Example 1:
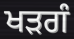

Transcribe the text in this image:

ਖੜਗੰ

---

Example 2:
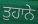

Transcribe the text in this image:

ਤੁਹਾਨੇ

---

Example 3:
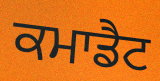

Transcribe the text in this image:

ਕਮਾਡੈਟ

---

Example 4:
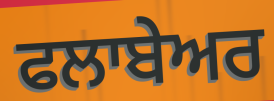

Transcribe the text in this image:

ਫਲਾਬੇਅਰ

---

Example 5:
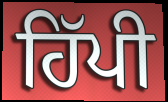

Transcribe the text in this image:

ਹਿੱਪੀ